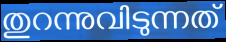
തുറന്നുവിടുന്നത്